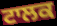
ਟਾਲਕ